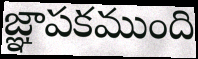
జ్ఞాపకముంది